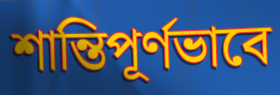
শান্তিপূর্ণভাবে